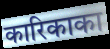
कारिकाका